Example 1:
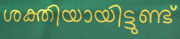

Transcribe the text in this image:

ശക്തിയായിട്ടുണ്ട്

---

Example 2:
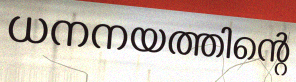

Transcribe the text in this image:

ധനനയത്തിന്റെ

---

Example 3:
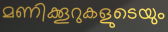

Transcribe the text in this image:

മണിക്കൂറുകളുടെയും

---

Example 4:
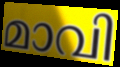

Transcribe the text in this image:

മാവി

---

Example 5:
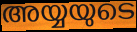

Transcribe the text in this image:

അയ്യയുടെ